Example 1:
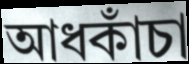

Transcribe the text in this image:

আধকাঁচা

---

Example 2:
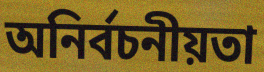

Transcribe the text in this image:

অনির্বচনীয়তা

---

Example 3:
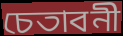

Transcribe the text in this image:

চেতাবনী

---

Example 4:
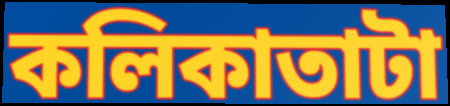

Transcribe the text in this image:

কলিকাতাটা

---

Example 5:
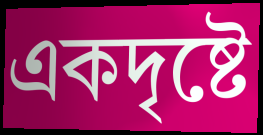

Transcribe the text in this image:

একদৃষ্টে